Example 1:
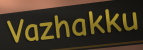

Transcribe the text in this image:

Vazhakku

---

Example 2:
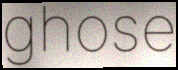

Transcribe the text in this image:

ghose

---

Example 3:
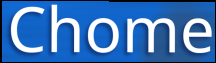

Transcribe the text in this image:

Chome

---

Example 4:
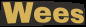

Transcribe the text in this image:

Wees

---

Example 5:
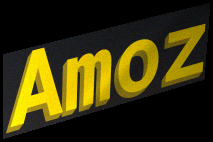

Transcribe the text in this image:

Amoz